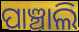
ପାଞ୍ଚାଲି